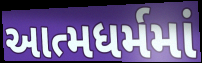
આત્મધર્મમાં